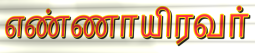
எண்ணாயிரவர்